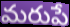
మరుపే